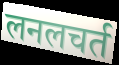
लनलचर्त